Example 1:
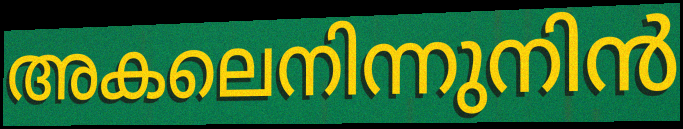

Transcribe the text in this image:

അകലെനിന്നുനിൻ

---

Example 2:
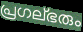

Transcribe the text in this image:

പ്രഗല്ഭരും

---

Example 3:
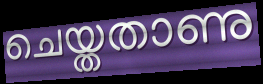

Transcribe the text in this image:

ചെയ്തതാണു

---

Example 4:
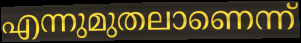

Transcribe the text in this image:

എന്നുമുതലാണെന്ന്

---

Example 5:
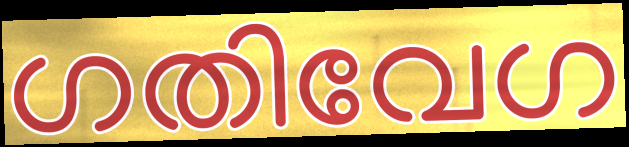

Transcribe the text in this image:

ഗതിവേഗ